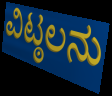
ವಿಟ್ಠಲನು